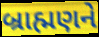
બ્રાહ્મણને